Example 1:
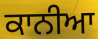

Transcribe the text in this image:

ਕਾਨੀਆ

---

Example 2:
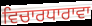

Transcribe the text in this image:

ਵਿਚਾਰਧਾਰਾਵਾ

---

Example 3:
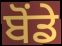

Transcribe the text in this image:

ਬੋਂਡੇ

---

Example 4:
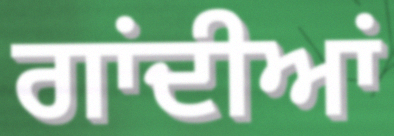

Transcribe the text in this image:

ਗਾਂਦੀਆਂ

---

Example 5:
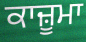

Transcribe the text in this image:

ਕਾਜ਼ੂਮਾ